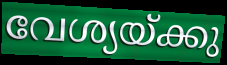
വേശ്യയ്ക്കു